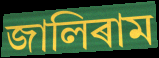
জালিৰাম